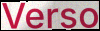
Verso